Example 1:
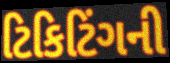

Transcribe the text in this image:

ટિકિટિંગની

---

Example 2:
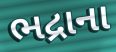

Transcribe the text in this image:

ભદ્રાના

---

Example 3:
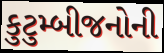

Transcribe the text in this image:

કુટુમ્બીજનોની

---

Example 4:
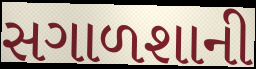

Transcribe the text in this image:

સગાળશાની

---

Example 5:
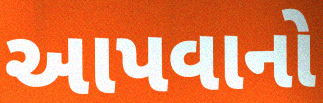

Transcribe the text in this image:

આપવાનો